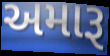
અમારૂ